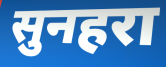
सुनहरा